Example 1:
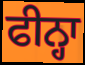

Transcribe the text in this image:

ਫੀਨ੍ਹਾ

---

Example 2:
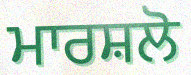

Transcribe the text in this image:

ਮਾਰਸ਼ਲੋ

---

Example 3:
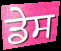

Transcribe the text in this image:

ਡੇਸ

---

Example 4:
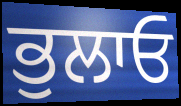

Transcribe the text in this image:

ਭੁਲਾਓ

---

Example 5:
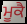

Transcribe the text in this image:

ਮੂਕੈ